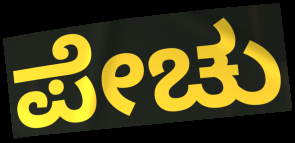
ಪೇಚು